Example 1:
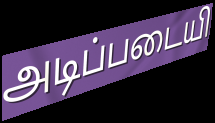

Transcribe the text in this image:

அடிப்படையி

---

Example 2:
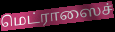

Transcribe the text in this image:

மெட்ராஸைச்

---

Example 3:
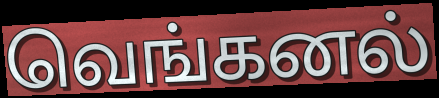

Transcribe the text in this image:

வெங்கனல்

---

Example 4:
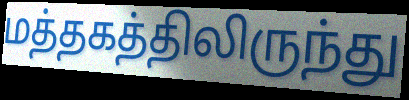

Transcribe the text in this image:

மத்தகத்திலிருந்து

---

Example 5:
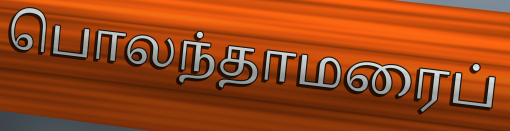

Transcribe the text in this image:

பொலந்தாமரைப்